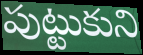
పుట్టుకుని